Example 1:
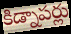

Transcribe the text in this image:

కిడ్నాపర్లు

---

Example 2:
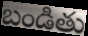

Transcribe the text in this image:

బండితు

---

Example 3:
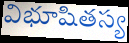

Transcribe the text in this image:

విభూషితస్య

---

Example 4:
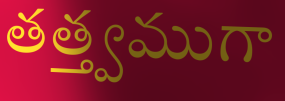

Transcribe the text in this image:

తత్త్వముగా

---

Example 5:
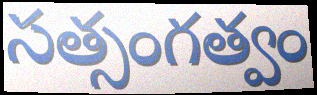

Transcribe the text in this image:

సత్సంగత్వం